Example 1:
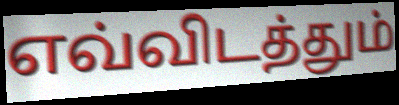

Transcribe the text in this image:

எவ்விடத்தும்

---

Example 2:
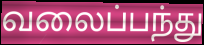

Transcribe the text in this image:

வலைப்பந்து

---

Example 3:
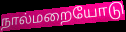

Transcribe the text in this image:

நால்மறையோடு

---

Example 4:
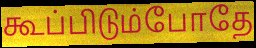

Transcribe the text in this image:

கூப்பிடும்போதே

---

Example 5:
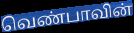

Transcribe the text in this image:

வெண்பாவின்